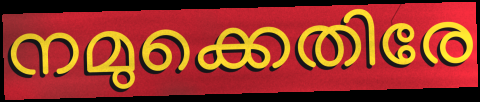
നമുക്കെതിരേ